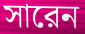
সারেন